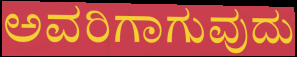
ಅವರಿಗಾಗುವುದು